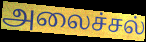
அலைச்சல்